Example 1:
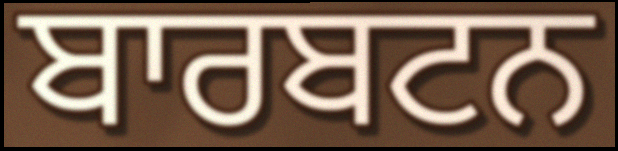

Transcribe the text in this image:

ਬਾਰਬਟਨ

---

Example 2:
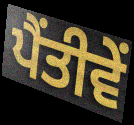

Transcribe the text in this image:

ਪੈਂਤੀਵੇਂ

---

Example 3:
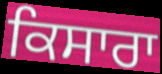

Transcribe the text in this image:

ਕਿਸਾਰਾ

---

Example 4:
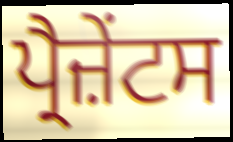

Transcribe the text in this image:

ਪ੍ਰੈਜ਼ੇਂਟਸ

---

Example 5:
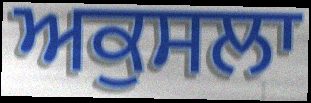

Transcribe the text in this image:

ਅਕੁਸਲਾ